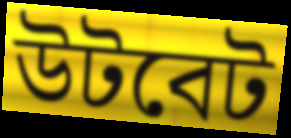
উটবেট